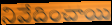
నివేదించాయి